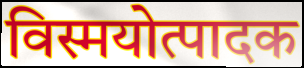
विस्मयोत्पादक